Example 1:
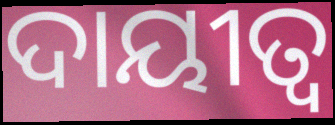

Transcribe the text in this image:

ଦାୟୀତ୍ୱ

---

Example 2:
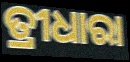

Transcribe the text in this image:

ତ୍ରୀଧାରା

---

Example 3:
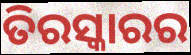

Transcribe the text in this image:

ତିରସ୍କାରର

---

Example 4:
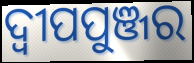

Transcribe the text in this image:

ଦ୍ଵୀପପୁଞ୍ଜର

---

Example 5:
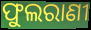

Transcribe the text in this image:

ଫୁଲରାଣୀ